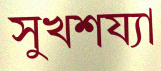
সুখশয্যা